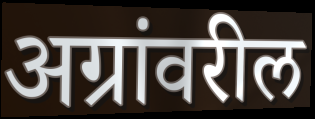
अग्रांवरील